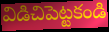
విడిచిపెట్టకండి